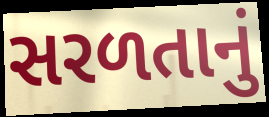
સરળતાનું